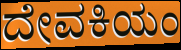
ದೇವಕಿಯಂ